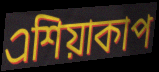
এশিয়াকাপ